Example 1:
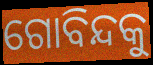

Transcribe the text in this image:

ଗୋବିନ୍ଦକୁ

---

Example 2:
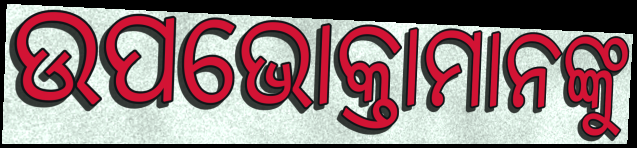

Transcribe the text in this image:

ଉପଭୋକ୍ତାମାନଙ୍କୁ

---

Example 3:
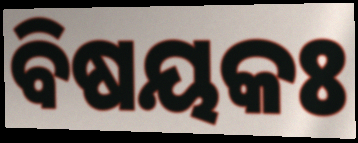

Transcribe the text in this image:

ବିଷୟକଃ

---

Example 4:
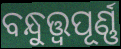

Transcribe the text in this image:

ବନ୍ଧୁତ୍ତ୍ୱପୂର୍ଣ୍ଣ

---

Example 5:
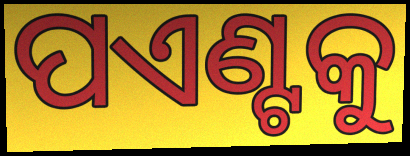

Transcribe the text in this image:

ପଏଣ୍ଟକୁ